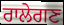
ਰਾਲੇਗਣ